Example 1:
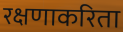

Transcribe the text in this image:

रक्षणाकरिता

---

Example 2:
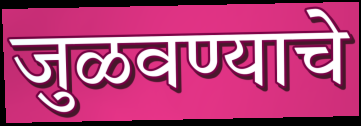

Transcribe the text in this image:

जुळवण्याचे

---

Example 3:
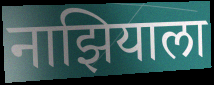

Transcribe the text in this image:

नाझियाला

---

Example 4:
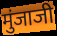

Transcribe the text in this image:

मुंजाजी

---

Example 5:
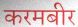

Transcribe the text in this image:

करमबीर